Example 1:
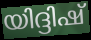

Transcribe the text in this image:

യിദ്ദിഷ്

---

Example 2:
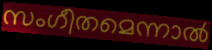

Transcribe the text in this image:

സംഗീതമെന്നാൽ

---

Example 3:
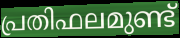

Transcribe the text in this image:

പ്രതിഫലമുണ്ട്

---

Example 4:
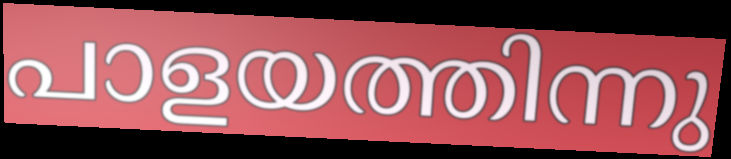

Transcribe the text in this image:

പാളയത്തിന്നു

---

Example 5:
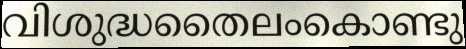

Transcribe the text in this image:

വിശുദ്ധതൈലംകൊണ്ടു